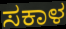
ಸಕಾಳ